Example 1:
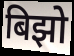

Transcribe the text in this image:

बिझो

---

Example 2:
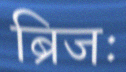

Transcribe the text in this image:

ब्रिजः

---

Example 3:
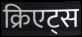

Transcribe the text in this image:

क्रिएट्स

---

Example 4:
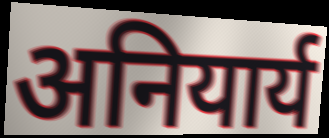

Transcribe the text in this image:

अनियार्य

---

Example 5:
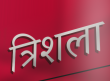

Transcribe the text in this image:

त्रिशला